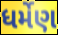
ધર્મેણ